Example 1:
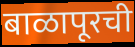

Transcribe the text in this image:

बाळापूरची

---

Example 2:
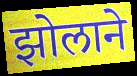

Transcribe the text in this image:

झोलाने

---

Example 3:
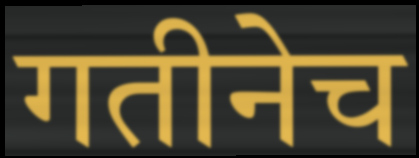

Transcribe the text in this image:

गतीनेच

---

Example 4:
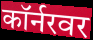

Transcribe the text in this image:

कॉर्नरवर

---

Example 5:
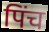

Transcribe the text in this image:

पिंच